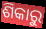
ଶିକାରୁ